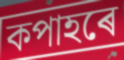
কপাহৰে